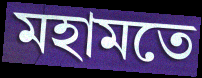
মহামতে